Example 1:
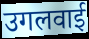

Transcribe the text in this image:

उगलवाई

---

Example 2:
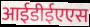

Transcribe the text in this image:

आईडीईएएस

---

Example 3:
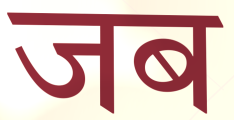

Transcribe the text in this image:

जब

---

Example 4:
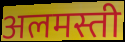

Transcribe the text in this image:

अलमस्ती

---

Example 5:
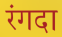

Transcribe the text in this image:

रंगदा